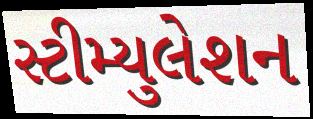
સ્ટીમ્યુલેશન